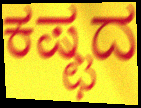
ಕಷ್ಟದ